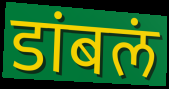
डांबलं